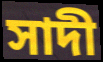
সাদী